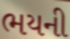
ભયની